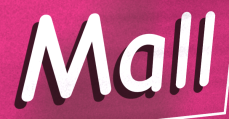
Mall